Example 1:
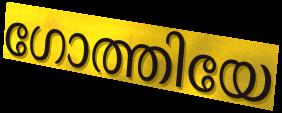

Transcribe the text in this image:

ഗോത്തിയേ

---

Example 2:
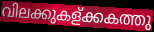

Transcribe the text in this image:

വിലക്കുകള്ക്കകത്തു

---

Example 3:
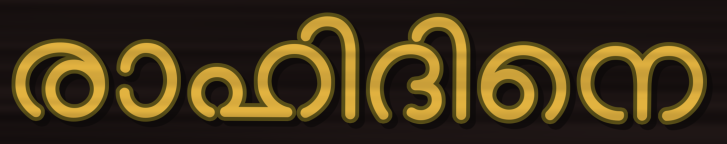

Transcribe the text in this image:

രാഹിദിനെ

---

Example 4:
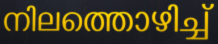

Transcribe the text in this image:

നിലത്തൊഴിച്ച്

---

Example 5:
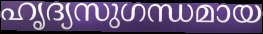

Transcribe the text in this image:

ഹൃദ്യസുഗന്ധമായ